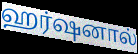
ஹர்ஷனால்